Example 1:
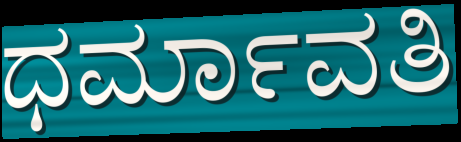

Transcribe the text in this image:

ಧರ್ಮಾವತಿ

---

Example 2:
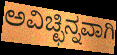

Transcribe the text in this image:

ಅವಿಚ್ಛಿನ್ನವಾಗಿ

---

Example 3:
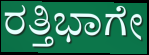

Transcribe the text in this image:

ರತ್ತಿಭಾಗೇ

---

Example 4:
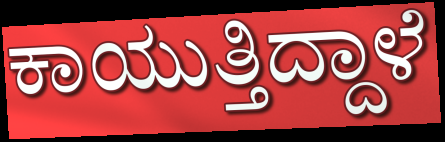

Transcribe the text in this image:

ಕಾಯುತ್ತಿದ್ದಾಳೆ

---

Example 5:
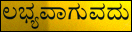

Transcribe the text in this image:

ಲಭ್ಯವಾಗುವದು